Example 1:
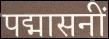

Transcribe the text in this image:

पद्मासनीं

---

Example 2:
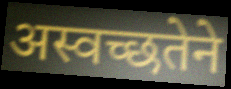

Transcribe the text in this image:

अस्वच्छतेने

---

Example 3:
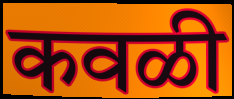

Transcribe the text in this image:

कवळी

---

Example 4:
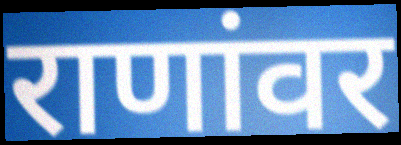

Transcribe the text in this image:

राणांवर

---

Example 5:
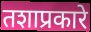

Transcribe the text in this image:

तशाप्रकारे